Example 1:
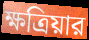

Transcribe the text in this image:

ক্ষত্রিয়ার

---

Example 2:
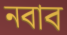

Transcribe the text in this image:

নবাব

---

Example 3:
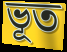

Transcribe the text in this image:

ভূত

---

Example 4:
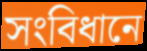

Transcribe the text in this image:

সংবিধানে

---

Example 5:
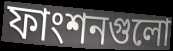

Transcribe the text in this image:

ফাংশনগুলো